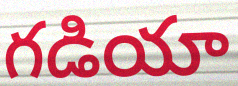
గడియా